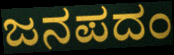
ಜನಪದಂ